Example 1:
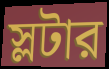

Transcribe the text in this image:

স্লটার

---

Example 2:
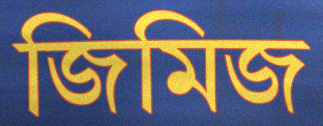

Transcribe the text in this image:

জিমিজ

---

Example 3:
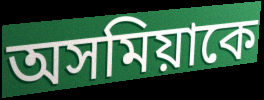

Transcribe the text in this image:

অসমিয়াকে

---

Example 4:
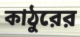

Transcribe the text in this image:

কাঠুরের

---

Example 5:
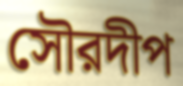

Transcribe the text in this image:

সৌরদীপ